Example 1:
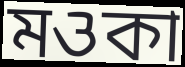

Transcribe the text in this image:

মওকা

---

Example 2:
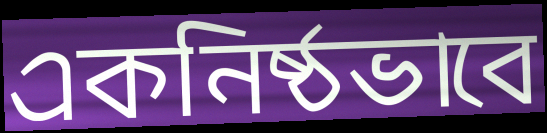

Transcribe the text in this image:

একনিষ্ঠভাবে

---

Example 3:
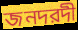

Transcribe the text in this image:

জনদরদী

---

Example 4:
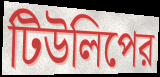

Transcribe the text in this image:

টিউলিপের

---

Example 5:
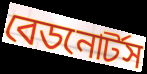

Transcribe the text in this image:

বেডনোর্টস